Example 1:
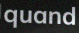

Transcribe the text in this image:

quand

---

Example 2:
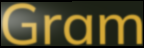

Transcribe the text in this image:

Gram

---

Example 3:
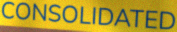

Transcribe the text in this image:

CONSOLIDATED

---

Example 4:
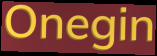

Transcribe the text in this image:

Onegin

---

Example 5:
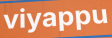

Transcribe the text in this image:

viyappu